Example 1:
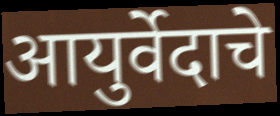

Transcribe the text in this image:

आयुर्वेदाचे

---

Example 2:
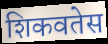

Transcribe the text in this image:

शिकवतेस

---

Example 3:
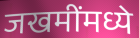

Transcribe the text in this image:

जखमींमध्ये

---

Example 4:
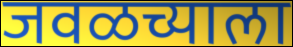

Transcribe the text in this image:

जवळच्याला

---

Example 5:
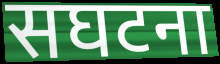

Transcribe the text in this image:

सघटना